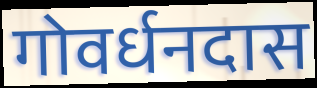
गोवर्धनदास